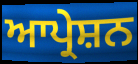
ਆਪ੍ਰੇਸ਼ਨ